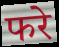
फरे